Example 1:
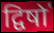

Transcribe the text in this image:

द्विषो॑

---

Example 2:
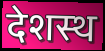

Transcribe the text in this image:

देशस्थ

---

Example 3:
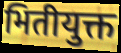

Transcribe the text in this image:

भितीयुक्त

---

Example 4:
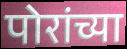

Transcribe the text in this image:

पोरांच्या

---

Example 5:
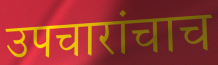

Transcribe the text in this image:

उपचारांचाच